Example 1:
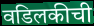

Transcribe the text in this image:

वडिलकीची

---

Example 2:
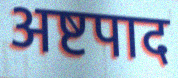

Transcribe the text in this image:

अष्टपाद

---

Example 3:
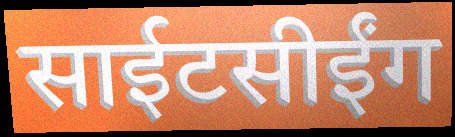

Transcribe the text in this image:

साईटसीईंग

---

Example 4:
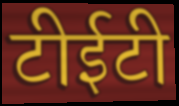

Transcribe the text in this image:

टीईटी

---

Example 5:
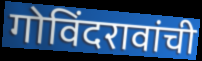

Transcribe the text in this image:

गोविंदरावांची